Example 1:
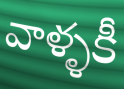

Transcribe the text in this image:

వాళ్ళకీ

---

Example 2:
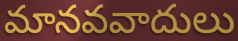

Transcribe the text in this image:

మానవవాదులు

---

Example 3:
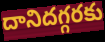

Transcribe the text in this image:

దానిదగ్గరకు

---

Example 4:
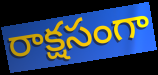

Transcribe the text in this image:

రాక్షసంగా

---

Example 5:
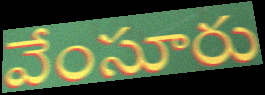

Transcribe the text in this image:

వేంసూరు